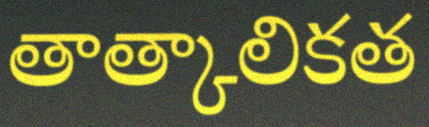
తాత్కాలికత